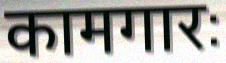
कामगारः